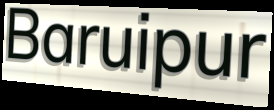
Baruipur